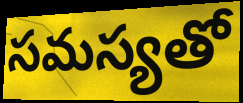
సమస్యతో